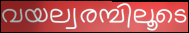
വയല്വരമ്പിലൂടെ